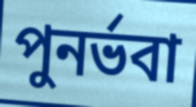
পুনর্ভবা